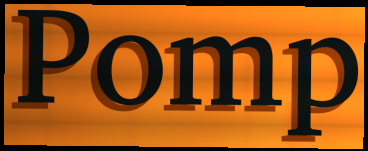
Pomp